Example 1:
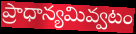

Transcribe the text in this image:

ప్రాధాన్యమివ్వటం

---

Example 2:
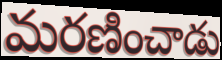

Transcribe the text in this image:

మరణించాడు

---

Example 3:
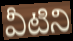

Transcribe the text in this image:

వీటిని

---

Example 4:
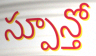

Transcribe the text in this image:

స్పూన్తో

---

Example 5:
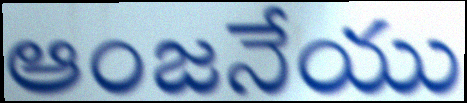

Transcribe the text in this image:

ఆంజనేయు